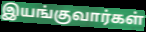
இயங்குவார்கள்